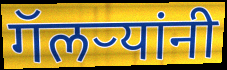
गॅलऱ्यांनी